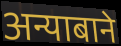
अन्याबाने